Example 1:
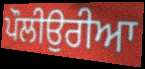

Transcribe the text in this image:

ਪੌਲੀਉਰੀਆ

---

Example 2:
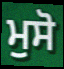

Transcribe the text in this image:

ਮੁਸੋ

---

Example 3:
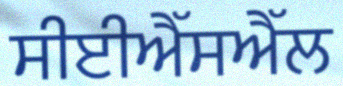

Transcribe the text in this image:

ਸੀਈਐੱਸਐੱਲ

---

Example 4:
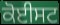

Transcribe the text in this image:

ਕੋਈਸਟ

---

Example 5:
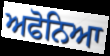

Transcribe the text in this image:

ਅਫੋਨਿਆ